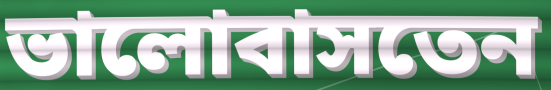
ভালোবাসতেন